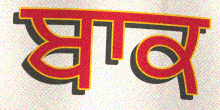
ਬਾਕ